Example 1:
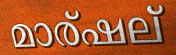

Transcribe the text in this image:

മാര്ഷല്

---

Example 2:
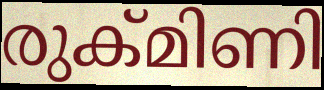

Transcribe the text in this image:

രുക്മിണി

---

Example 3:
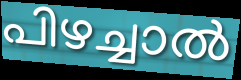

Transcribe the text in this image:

പിഴച്ചാൽ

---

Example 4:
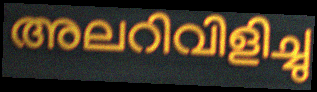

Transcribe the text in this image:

അലറിവിളിച്ചു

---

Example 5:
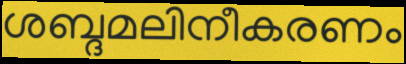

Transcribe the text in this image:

ശബ്ദമലിനീകരണം